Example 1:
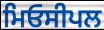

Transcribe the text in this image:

ਮਿਓਸੀਪਲ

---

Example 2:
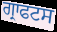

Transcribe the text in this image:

ਗ੍ਰਾਫਟਸ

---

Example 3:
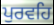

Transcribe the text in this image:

ਪੁਰਵਹਿ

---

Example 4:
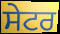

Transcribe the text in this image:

ਸੇਟਰ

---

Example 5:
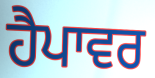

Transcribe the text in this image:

ਹੈਪਾਵਰ